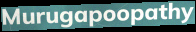
Murugapoopathy